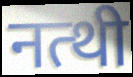
नत्‍थी